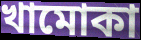
খামোকা